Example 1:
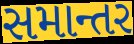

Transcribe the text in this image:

સમાન્તર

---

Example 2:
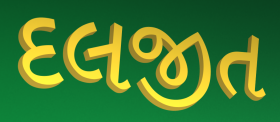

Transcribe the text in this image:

દલજીત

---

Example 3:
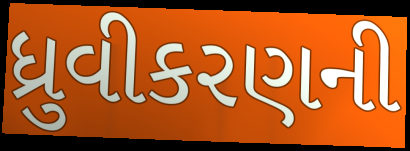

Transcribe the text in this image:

ધ્રુવીકરણની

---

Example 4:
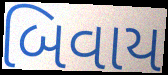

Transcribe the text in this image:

બિવાય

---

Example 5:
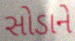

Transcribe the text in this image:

સોડાને